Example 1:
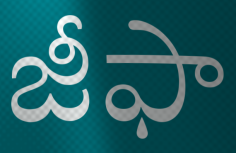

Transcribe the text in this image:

జీఫా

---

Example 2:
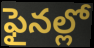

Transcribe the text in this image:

ఫైనల్లో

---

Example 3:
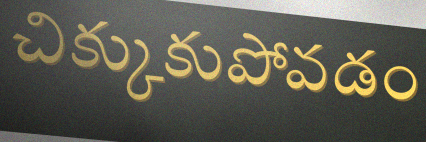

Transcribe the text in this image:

చిక్కుకుపోవడం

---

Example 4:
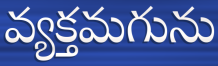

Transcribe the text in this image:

వ్యక్తమగును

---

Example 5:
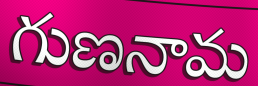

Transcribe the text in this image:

గుణనామ